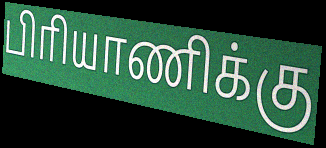
பிரியாணிக்கு